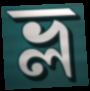
ভ্ল